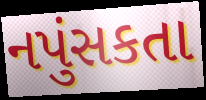
નપુંસકતા